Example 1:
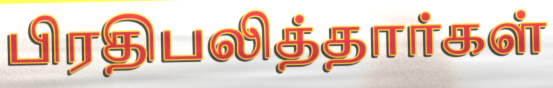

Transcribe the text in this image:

பிரதிபலித்தார்கள்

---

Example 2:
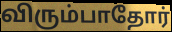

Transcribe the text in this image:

விரும்பாதோர்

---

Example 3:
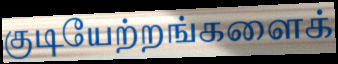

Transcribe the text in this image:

குடியேற்றங்களைக்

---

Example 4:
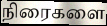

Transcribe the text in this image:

நிரைகளை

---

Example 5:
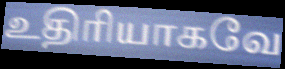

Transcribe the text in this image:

உதிரியாகவே